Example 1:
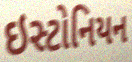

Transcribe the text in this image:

ઇસ્ટોનિયન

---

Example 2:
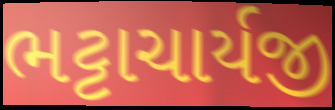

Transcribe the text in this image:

ભટ્ટાચાર્યજી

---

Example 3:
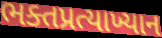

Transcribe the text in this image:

ભક્તપ્રત્યાખ્યાન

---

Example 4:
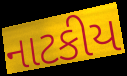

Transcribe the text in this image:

નાટકીય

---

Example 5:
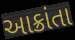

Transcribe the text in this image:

આક્રાંતા